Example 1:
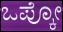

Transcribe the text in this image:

ಒಪ್ಕೋ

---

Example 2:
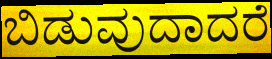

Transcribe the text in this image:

ಬಿಡುವುದಾದರೆ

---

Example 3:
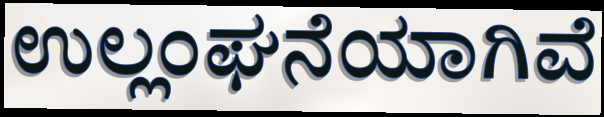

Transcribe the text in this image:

ಉಲ್ಲಂಘನೆಯಾಗಿವೆ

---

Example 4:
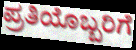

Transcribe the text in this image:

ಪ್ರತಿಯೊಬ್ಬರಿಗೆ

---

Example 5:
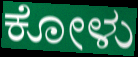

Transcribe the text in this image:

ಕೋಳು